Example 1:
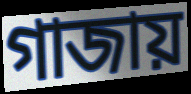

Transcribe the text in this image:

গাজায়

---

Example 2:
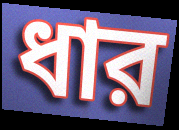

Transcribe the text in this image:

ধার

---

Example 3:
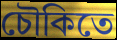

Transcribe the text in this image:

চৌকিতে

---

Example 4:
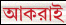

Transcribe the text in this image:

আকরাই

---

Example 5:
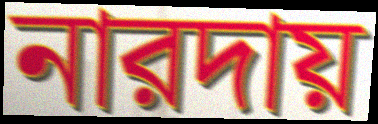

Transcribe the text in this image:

নারদায়